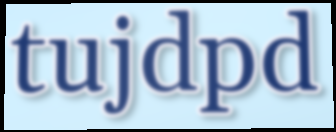
tujdpd